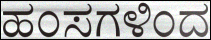
ಹಂಸಗಳಿಂದ